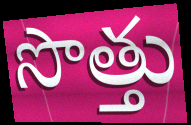
సొత్తు